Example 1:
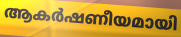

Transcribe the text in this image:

ആകർഷണീയമായി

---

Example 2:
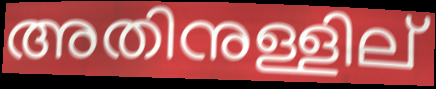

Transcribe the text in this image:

അതിനുള്ളില്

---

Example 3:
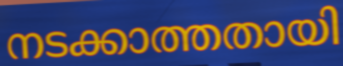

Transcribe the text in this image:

നടക്കാത്തതായി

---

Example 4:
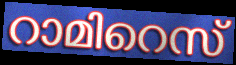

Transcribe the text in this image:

റാമിറെസ്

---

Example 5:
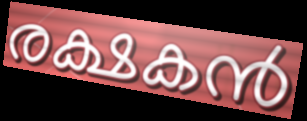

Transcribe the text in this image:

രക്ഷകൻ